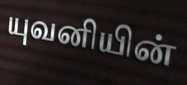
யுவனியின்